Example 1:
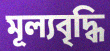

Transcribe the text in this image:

মূল্যবৃদ্ধি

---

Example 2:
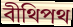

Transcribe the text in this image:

বীথিপথ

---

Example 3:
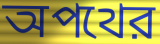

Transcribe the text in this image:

অপথের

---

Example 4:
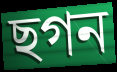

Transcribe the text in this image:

ছগন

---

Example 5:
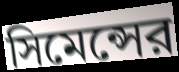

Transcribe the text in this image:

সিমেন্সের